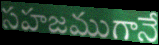
సహజముగానే